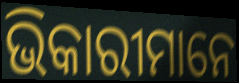
ଭିକାରୀମାନେ